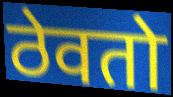
ठेवतो